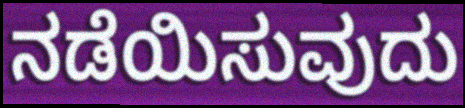
ನಡೆಯಿಸುವುದು